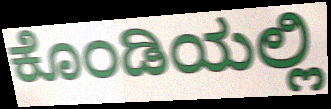
ಕೊಂಡಿಯಲ್ಲಿ